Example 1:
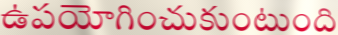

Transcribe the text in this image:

ఉపయోగించుకుంటుంది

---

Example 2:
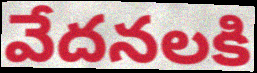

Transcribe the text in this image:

వేదనలకి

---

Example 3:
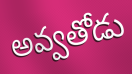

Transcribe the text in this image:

అవ్వతోడు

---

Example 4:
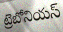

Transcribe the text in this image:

ట్రెబోనియస్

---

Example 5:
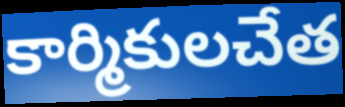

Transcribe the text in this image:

కార్మికులచేత